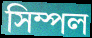
সিম্পল